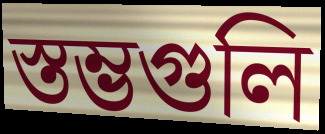
স্তম্ভগুলি